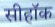
सीहॉक